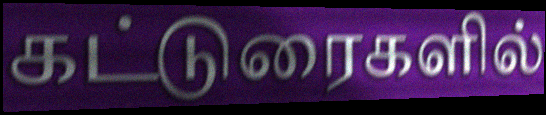
கட்டுரைகளில்